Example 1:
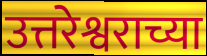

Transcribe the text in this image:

उत्तरेश्वराच्या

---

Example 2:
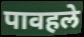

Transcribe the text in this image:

पावहले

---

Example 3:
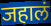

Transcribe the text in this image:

जहालं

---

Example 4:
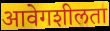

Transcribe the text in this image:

आवेगशीलता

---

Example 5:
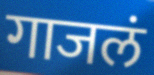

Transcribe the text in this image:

गाजलं